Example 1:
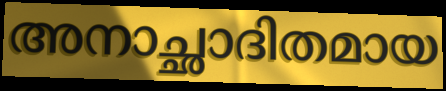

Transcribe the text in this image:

അനാച്ഛാദിതമായ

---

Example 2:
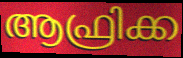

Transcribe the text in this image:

ആഫ്രിക്ക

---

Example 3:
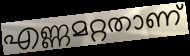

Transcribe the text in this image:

എണ്ണമറ്റതാണ്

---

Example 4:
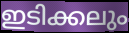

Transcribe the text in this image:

ഇടിക്കലും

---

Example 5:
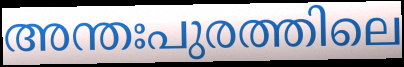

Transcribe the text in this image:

അന്തഃപുരത്തിലെ